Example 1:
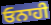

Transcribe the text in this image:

ਓਨਾਹੀ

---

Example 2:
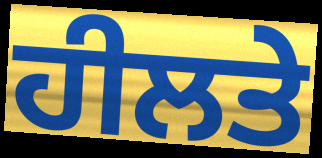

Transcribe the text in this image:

ਹੀਲਤੇ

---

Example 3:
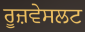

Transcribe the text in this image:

ਰੂਜ਼ਵੇਸਲਟ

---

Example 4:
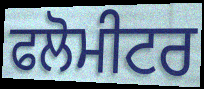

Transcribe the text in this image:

ਫਲੋਮੀਟਰ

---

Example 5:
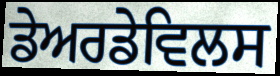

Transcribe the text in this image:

ਡੇਅਰਡੇਵਿਲਸ